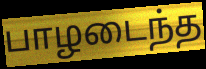
பாழடைந்த